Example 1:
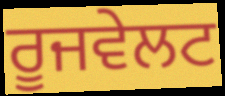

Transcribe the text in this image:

ਰੂਜਵੇਲਟ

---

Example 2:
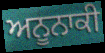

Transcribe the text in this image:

ਅਨੂਨਾਕੀ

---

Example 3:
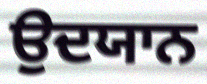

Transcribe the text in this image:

ਉਦਯਾਨ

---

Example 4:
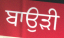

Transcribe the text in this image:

ਬਾਉੜੀ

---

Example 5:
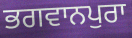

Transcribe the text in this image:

ਭਗਵਾਨਪੁਰਾ